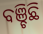
ବଞ୍ଚିଛି